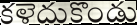
కళెదుకొండు